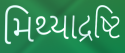
મિથ્યાદ્રષ્ટિ